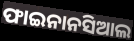
ଫାଇନାନସିଆଲ